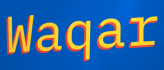
Waqar